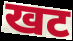
खट